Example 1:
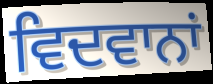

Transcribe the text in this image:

ਵਿਦਵਾਨਾਂ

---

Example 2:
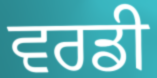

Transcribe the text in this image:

ਵਰਡੀ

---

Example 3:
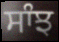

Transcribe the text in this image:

ਸਾੰਝ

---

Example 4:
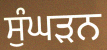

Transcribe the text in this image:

ਸੁੰਘੜਨ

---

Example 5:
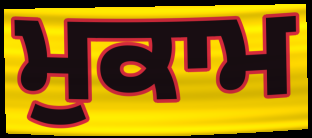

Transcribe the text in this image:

ਮੁਕਾਮ